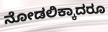
ನೋಡಲಿಕ್ಕಾದರೂ